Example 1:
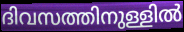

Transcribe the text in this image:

ദിവസത്തിനുള്ളിൽ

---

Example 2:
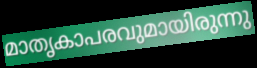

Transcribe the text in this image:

മാതൃകാപരവുമായിരുന്നു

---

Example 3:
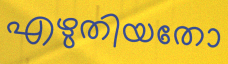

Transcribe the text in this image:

എഴുതിയതോ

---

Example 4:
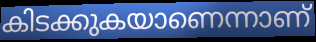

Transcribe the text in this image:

കിടക്കുകയാണെന്നാണ്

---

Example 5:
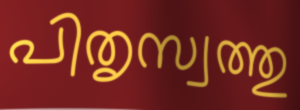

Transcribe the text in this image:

പിതൃസ്വത്തു